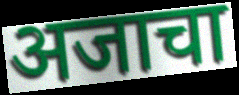
अजाचा